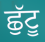
ਛੁੱਟੂ